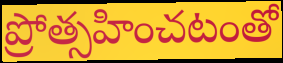
ప్రోత్సహించటంతో